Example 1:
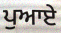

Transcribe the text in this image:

ਪੁਆਏ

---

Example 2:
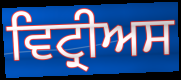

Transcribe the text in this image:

ਵਿਟ੍ਰੀਅਸ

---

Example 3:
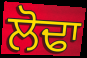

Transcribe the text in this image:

ਲੋਢਾ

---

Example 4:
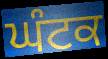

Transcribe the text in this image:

ਘੰਟਕ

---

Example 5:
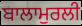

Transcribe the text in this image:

ਬਾਲਾਮੁਰਲੀ